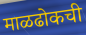
माळढोकची